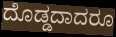
ದೊಡ್ಡದಾದರೂ